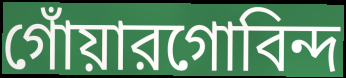
গোঁয়ারগোবিন্দ